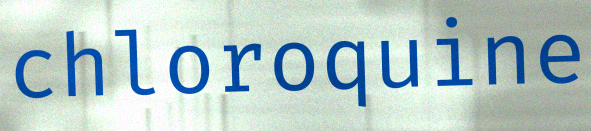
chloroquine